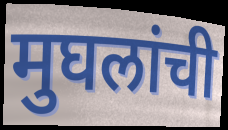
मुघलांची